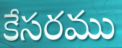
కేసరము